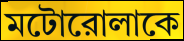
মটোরোলাকে